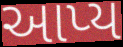
આપ્ય